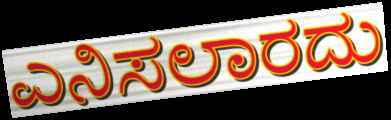
ಎನಿಸಲಾರದು